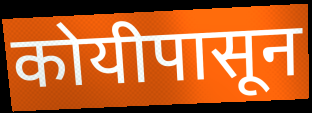
कोयीपासून